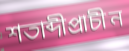
শতাব্দীপ্রাচীন